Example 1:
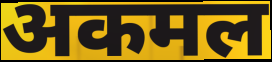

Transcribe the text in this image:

अकमल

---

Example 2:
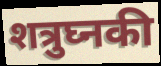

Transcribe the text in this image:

शत्रुघ्नकी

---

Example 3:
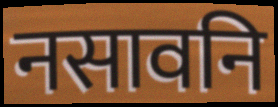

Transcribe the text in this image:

नसावनि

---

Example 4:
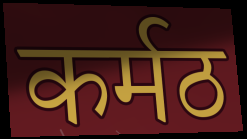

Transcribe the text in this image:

कर्मठ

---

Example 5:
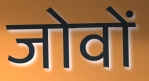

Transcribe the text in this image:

जोवों